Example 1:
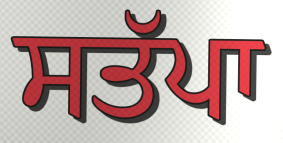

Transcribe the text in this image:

ਸਤੱਪਾ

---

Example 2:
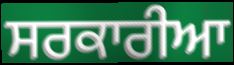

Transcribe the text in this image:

ਸਰਕਾਰੀਆ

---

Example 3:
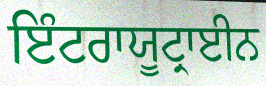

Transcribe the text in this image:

ਇੰਟਰਾਯੂਟ੍ਰਾਈਨ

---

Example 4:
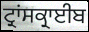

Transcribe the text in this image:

ਟ੍ਰਾਂਸਕ੍ਰਾਈਬ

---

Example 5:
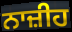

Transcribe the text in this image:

ਨਾਜ਼ੀਹ